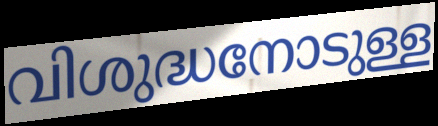
വിശുദ്ധനോടുള്ള